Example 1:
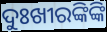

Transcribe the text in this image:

ଦୁଃଖୀରଙ୍କିଙ୍କି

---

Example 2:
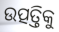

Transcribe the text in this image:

ଉତ୍ପତ୍ତିକୁ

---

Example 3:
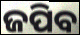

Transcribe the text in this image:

ଜପିବ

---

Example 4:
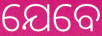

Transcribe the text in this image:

ଯେବେ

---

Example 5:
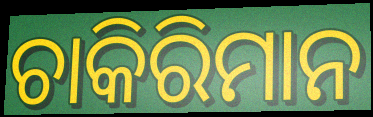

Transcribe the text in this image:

ଚାକିରିମାନ